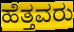
ಹೆತ್ತವರು